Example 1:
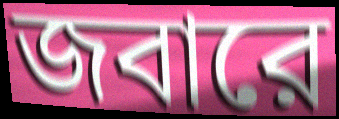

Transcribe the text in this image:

জবারে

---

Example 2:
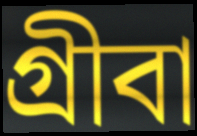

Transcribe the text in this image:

গ্রীবা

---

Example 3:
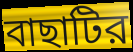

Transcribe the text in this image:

বাছাটির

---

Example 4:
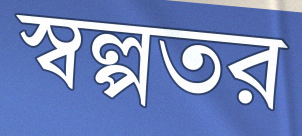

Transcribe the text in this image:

স্বল্পতর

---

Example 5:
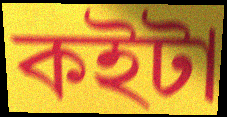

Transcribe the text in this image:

কইটা